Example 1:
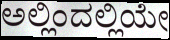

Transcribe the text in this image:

ಅಲ್ಲಿಂದಲ್ಲಿಯೇ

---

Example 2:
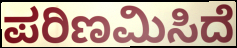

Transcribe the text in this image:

ಪರಿಣಮಿಸಿದೆ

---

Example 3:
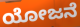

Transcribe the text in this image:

ಯೋಜನೆ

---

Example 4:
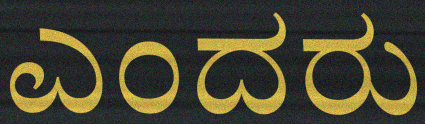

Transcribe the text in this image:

ಎಂದರು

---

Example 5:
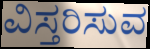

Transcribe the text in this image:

ವಿಸ್ತರಿಸುವ